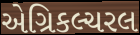
એગ્રિકલ્ચરલ